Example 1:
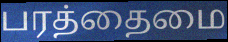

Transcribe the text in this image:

பரத்தைமை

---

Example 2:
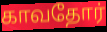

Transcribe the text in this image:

காவதோர்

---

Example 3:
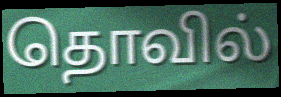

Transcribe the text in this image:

தொவில்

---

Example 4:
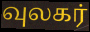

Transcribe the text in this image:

வுலகர்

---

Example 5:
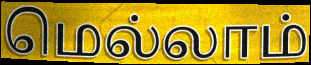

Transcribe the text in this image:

மெல்லாம்